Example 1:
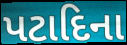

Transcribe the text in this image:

પટાદિના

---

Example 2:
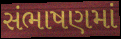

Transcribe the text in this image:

સંભાષણમાં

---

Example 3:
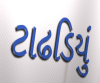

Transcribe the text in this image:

ટાઢડિયું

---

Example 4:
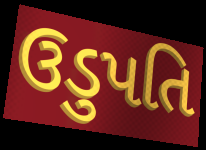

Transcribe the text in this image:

ઉડુપતિ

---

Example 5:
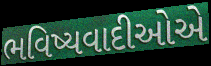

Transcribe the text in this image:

ભવિષ્યવાદીઓએ